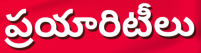
ప్రయారిటీలు